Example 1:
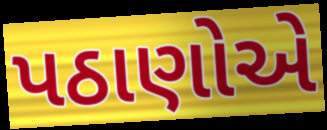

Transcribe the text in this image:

પઠાણોએ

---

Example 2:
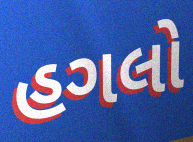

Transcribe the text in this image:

હગલો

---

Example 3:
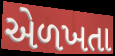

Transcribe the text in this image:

એળખતા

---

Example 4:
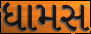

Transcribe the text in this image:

ધામસ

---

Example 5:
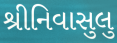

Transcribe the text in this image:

શ્રીનિવાસુલુ